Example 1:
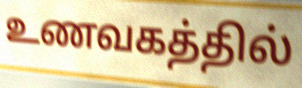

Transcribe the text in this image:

உணவகத்தில்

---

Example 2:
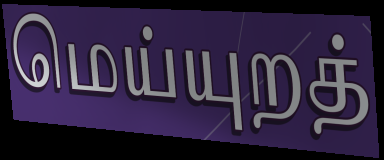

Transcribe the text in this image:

மெய்யுறத்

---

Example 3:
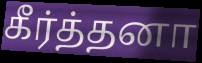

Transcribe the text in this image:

கீர்த்தனா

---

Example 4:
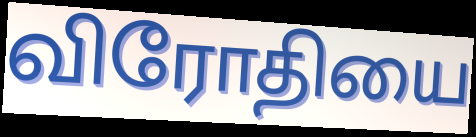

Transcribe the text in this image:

விரோதியை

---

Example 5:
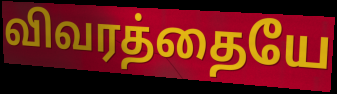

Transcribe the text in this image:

விவரத்தையே